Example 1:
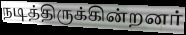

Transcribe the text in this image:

நடித்திருக்கின்றனர்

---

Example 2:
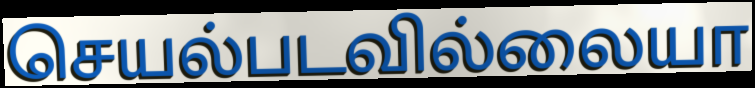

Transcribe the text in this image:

செயல்படவில்லையா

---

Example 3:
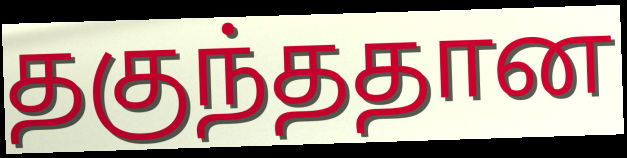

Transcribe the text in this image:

தகுந்ததான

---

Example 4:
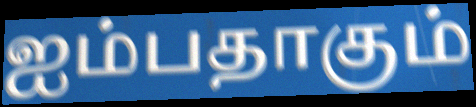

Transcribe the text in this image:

ஐம்பதாகும்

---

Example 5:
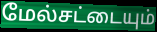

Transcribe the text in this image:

மேல்சட்டையும்